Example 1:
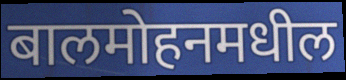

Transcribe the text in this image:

बालमोहनमधील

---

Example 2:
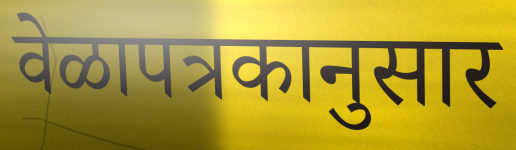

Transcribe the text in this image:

वेळापत्रकानुसार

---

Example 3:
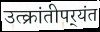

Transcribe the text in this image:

उत्क्रांतीपर्यंत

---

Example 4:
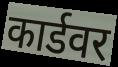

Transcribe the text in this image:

कार्डवर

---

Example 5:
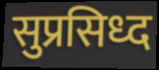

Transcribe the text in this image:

सुप्रसिध्द